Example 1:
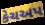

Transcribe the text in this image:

કેચઅપ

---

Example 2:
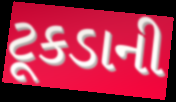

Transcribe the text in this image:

ટૂકડાની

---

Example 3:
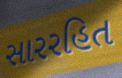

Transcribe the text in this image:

સારરહિત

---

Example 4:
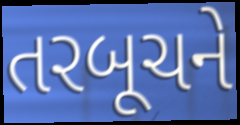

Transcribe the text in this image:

તરબૂચને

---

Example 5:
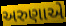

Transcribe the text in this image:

અરુણાએ